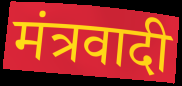
मंत्रवादी